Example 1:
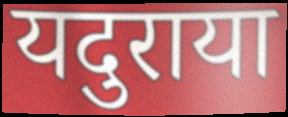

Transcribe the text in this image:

यदुराया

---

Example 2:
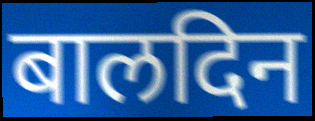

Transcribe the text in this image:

बालदिन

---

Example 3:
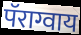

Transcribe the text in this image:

पॅराग्वाय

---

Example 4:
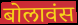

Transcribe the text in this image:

बोलावंस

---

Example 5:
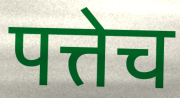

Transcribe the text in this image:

पत्तेच